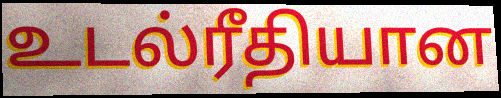
உடல்ரீதியான